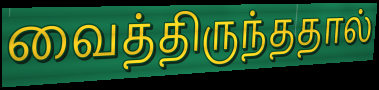
வைத்திருந்ததால்